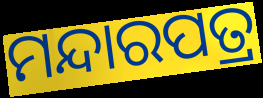
ମନ୍ଦାରପତ୍ର